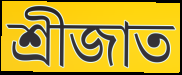
শ্রীজাত